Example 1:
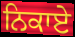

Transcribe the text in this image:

ਨਿਕਾਏ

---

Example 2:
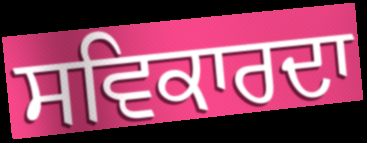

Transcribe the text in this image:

ਸਵਿਕਾਰਦਾ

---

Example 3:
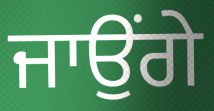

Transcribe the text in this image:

ਜਾਉਂਗੇ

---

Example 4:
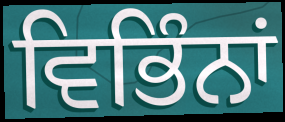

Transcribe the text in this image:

ਵਿਭਿੰਨਾਂ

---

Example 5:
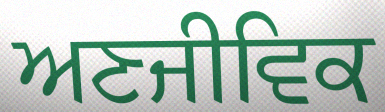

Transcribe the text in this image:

ਅਣਜੀਵਿਕ